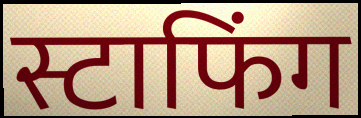
स्टाफिंग